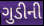
ગુડીની